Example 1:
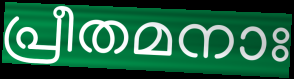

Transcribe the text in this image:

പ്രീതമനാഃ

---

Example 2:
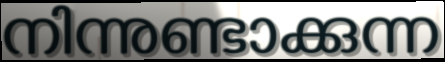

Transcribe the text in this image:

നിന്നുണ്ടാക്കുന്ന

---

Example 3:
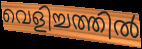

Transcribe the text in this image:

വെളിച്ചത്തിൽ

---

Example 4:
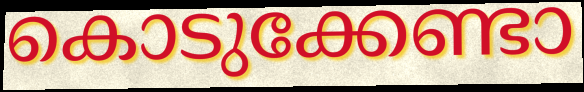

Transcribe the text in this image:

കൊടുക്കേണ്ടാ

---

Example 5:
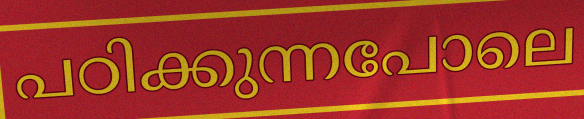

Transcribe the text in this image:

പഠിക്കുന്നപോലെ